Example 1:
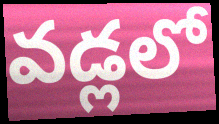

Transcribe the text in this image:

వడ్లలో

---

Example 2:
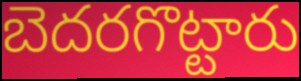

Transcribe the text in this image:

బెదరగొట్టారు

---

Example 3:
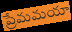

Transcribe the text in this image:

ప్రేమమయా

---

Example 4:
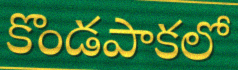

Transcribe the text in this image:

కొండపాకలో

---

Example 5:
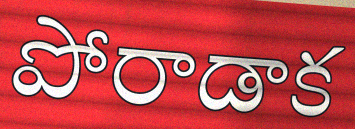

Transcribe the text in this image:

పోరాడాక